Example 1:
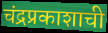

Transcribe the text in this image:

चंद्रप्रकाशाची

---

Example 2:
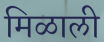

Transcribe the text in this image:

मिळाली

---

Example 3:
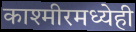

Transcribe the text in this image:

काश्‍मीरमध्येही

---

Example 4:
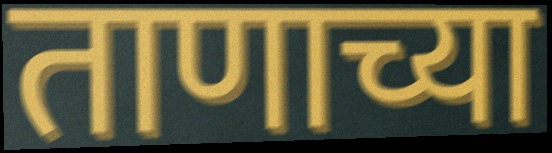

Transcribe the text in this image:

ताणाच्या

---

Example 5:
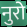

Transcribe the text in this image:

नुरो